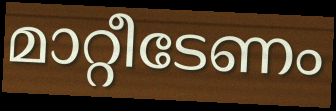
മാറ്റീടേണം